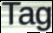
Tag